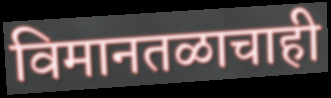
विमानतळाचाही